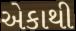
એકાથી